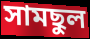
সামছুল